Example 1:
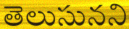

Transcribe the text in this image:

తెలుసునని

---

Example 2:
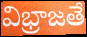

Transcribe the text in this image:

విభ్రాజతే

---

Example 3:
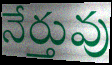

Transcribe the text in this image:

నేర్తువు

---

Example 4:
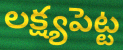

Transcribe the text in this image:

లక్ష్యపెట్ట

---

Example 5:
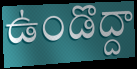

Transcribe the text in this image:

ఉండొద్దా